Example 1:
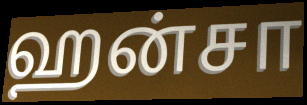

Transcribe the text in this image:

ஹன்சா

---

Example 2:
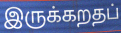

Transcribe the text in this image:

இருக்கறதப்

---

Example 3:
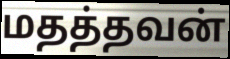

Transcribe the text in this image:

மதத்தவன்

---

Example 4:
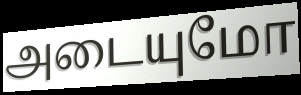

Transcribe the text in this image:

அடையுமோ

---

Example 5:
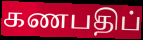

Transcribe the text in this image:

கணபதிப்